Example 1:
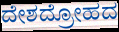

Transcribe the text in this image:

ದೇಶದ್ರೋಹದ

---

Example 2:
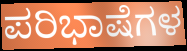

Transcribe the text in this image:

ಪರಿಭಾಷೆಗಳ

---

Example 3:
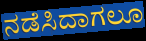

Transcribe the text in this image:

ನಡೆಸಿದಾಗಲೂ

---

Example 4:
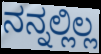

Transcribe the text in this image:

ನನ್ನಲ್ಲಿಲ್ಲ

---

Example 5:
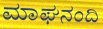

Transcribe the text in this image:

ಮಾಘನಂದಿ